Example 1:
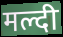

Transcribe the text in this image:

मल्दी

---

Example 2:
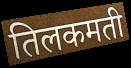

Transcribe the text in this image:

तिलकमती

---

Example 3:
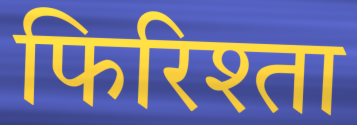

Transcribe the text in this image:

फिरिश्ता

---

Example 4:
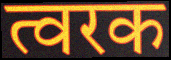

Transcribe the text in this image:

त्वरक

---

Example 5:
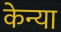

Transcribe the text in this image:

केन्या